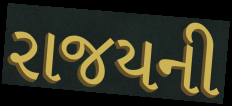
રાજયની